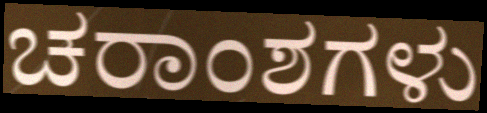
ಚರಾಂಶಗಳು